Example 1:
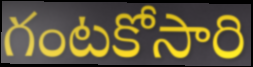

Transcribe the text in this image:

గంటకోసారి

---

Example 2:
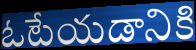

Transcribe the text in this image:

ఓటేయడానికి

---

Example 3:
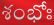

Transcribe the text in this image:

శంభోః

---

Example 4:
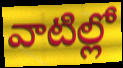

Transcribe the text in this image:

వాటిల్లో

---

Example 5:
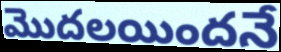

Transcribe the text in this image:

మొదలయిందనే